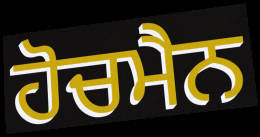
ਹੋਚਮੈਨ